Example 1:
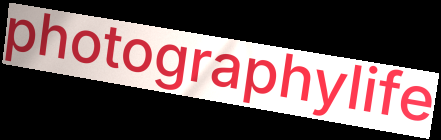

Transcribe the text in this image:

photographylife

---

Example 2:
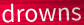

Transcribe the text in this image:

drowns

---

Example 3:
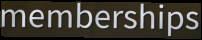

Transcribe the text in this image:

memberships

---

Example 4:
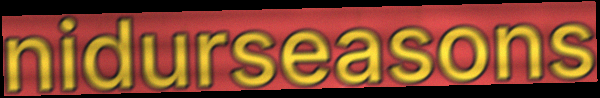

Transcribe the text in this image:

nidurseasons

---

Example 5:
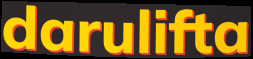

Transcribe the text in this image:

darulifta